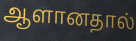
ஆளானதால்